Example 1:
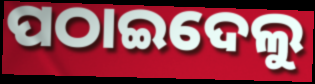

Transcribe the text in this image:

ପଠାଇଦେଲୁ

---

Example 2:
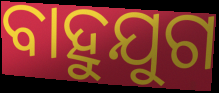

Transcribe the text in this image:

ବାହୁଯୁଗ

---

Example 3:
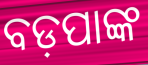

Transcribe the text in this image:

ବଡ଼ପାଙ୍କ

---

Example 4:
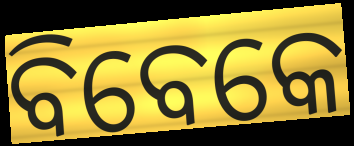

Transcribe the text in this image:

ବିବେକେ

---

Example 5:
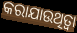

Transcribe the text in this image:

କରାଯାଉଥିତ୍ବା